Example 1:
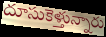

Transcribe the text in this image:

దూసుకెళ్తున్నారు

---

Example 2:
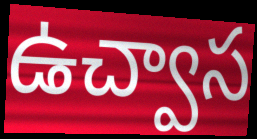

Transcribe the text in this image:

ఉచ్వాస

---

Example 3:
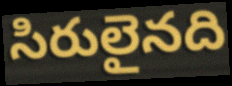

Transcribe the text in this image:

సిరులైనది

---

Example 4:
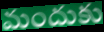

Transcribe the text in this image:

మందుకు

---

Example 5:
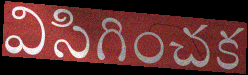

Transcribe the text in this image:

విసిగించక